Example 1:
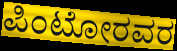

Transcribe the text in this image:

ಪಿಂಟೋರವರ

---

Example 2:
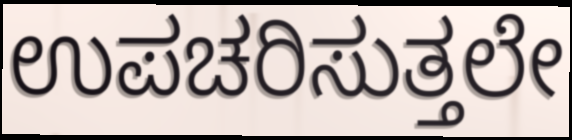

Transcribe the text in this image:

ಉಪಚರಿಸುತ್ತಲೇ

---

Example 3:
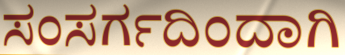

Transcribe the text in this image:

ಸಂಸರ್ಗದಿಂದಾಗಿ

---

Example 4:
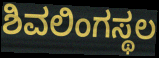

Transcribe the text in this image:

ಶಿವಲಿಂಗಸ್ಥಲ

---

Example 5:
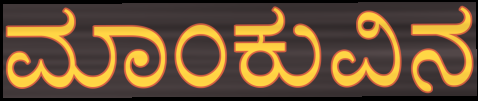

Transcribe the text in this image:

ಮಾಂಕುವಿನ